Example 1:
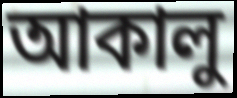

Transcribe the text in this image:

আকালু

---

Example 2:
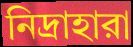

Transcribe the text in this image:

নিদ্রাহারা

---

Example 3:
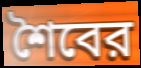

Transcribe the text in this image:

শৈবের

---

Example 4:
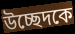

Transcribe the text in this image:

উচ্ছেদকে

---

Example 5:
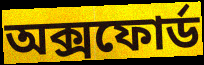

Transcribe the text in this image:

অক্সফোর্ড